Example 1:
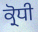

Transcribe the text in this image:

ਕ੍ਰੋਧੀ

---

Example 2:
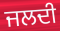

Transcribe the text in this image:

ਜਲਦੀ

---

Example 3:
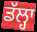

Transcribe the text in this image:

ਡੱਲ੍ਹਾ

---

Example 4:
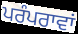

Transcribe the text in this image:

ਪਰੰਪਰਾਵਾਂ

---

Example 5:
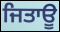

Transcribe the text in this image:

ਜਿਤਾਊ